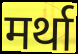
मर्था